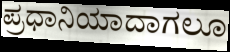
ಪ್ರಧಾನಿಯಾದಾಗಲೂ